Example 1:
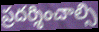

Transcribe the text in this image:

ప్రదర్శించాల్సి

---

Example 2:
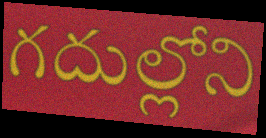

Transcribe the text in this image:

గదుల్లోని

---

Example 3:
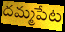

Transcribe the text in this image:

దమ్మపేట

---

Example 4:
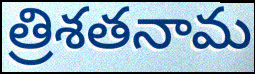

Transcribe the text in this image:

త్రిశతనామ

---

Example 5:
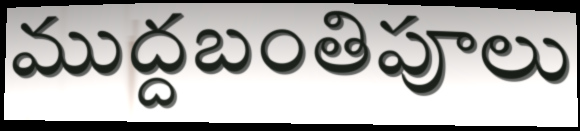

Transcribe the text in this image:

ముద్దబంతిపూలు